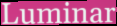
Luminar